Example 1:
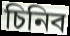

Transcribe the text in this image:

চিনিব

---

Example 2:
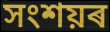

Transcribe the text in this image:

সংশয়ৰ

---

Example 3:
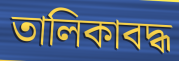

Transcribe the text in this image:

তালিকাবদ্ধ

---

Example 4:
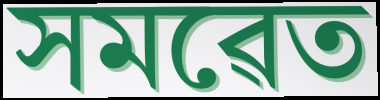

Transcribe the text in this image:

সমৱেত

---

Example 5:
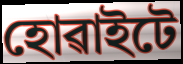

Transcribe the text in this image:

হোৱাইটে